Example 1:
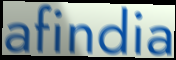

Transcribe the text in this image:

afindia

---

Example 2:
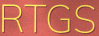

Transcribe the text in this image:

RTGS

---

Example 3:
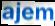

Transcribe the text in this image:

ajem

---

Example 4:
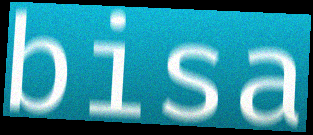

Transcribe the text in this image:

bisa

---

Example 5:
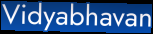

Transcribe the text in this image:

Vidyabhavan